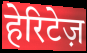
हेरिटेज़